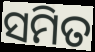
ସମିତ